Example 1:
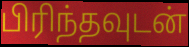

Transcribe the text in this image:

பிரிந்தவுடன்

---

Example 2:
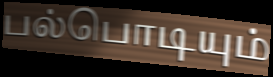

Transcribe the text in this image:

பல்பொடியும்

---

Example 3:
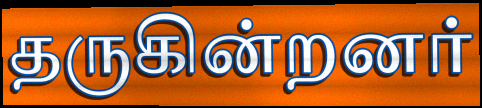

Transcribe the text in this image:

தருகின்றனர்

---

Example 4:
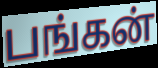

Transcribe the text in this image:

பங்கன்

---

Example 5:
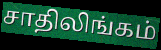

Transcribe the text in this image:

சாதிலிங்கம்